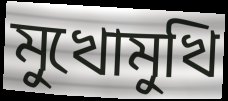
মুখোমুখি